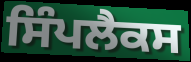
ਸਿੰਪਲੈਕਸ